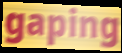
gaping